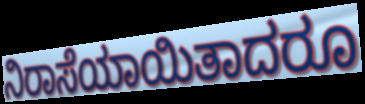
ನಿರಾಸೆಯಾಯಿತಾದರೂ